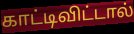
காட்டிவிட்டால்